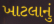
ખાટલાનું